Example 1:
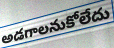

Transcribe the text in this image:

అడగాలనుకోలేదు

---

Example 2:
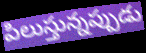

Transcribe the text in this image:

పిలుస్తున్నప్పుడు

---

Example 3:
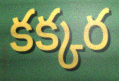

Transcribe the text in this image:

కక్కర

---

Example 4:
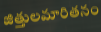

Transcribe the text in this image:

జిత్తులమారితనం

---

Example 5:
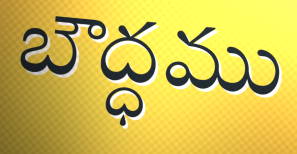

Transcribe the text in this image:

బౌద్ధము